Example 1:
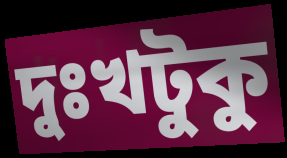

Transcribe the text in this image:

দুঃখটুকু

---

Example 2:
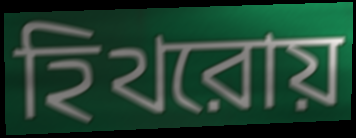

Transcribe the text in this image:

হিথরোয়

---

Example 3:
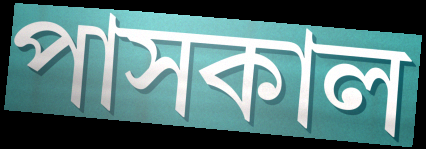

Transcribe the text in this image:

পাসকাল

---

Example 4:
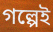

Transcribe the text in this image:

গল্পেই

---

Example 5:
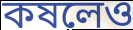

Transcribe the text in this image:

কষলেও